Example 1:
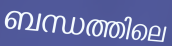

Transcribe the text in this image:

ബന്ധത്തിലെ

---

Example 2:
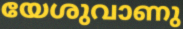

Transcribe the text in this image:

യേശുവാണു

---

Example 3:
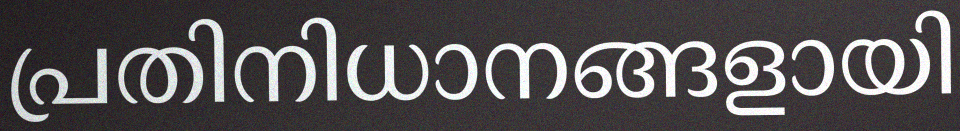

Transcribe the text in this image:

പ്രതിനിധാനങ്ങളായി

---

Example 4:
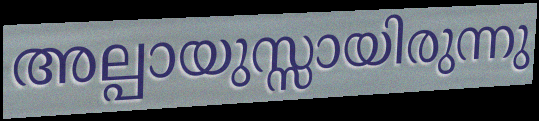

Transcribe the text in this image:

അല്പായുസ്സായിരുന്നു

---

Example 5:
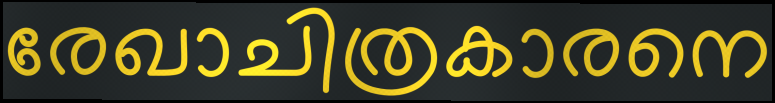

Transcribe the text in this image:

രേഖാചിത്രകാരനെ